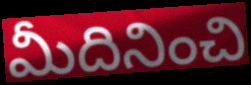
మీదినించి